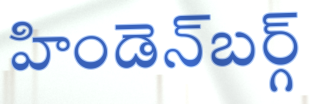
హిండెన్‌బర్గ్